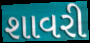
શાવરી